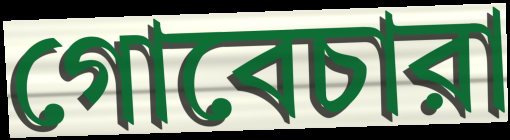
গোবেচারা